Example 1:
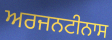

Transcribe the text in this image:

ਅਰਜਨਟੀਨਾਸ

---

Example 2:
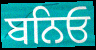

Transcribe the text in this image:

ਬਨਿਓ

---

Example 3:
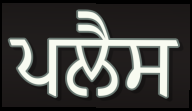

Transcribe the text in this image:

ਪਲੈਸ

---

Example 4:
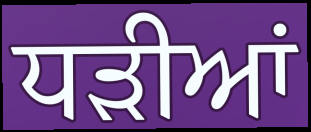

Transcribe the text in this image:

ਧੜੀਆਂ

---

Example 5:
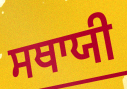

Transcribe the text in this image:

ਸਥਾਯੀ